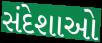
સંદેશાઓ